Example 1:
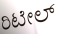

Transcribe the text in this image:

ರಿಟೇಲ್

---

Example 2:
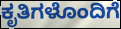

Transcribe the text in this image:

ಕೃತಿಗಳೊಂದಿಗೆ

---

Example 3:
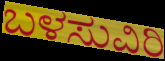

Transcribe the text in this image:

ಬಳಸುವಿರಿ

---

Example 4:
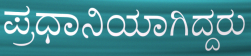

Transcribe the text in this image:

ಪ್ರಧಾನಿಯಾಗಿದ್ದರು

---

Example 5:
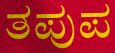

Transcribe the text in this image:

ತಪುಪ